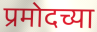
प्रमोदच्या